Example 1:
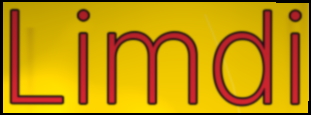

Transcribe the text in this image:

Limdi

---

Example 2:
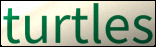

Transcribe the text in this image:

turtles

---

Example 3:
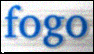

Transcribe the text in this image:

fogo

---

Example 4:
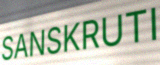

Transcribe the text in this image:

SANSKRUTI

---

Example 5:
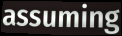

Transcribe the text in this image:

assuming